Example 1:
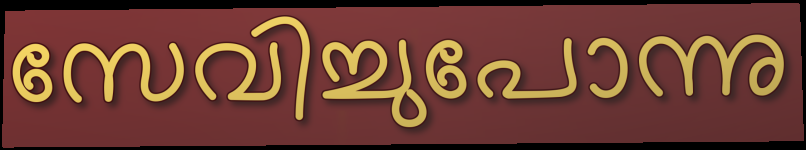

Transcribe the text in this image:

സേവിച്ചുപോന്നു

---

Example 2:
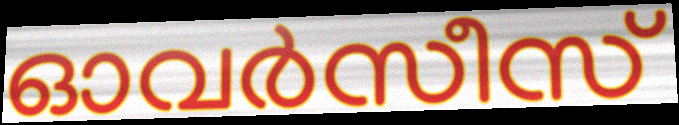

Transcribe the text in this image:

ഓവർസീസ്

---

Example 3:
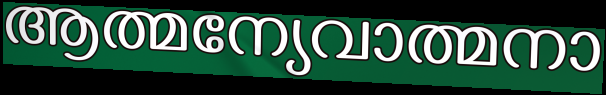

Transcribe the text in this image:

ആത്മന്യേവാത്മനാ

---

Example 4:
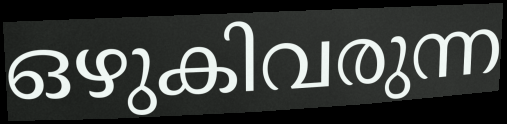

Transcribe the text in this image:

ഒഴുകിവരുന്ന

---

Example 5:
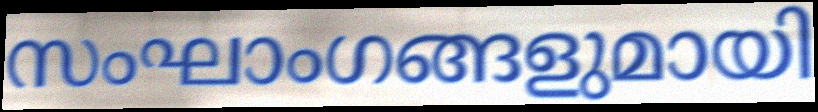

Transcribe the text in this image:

സംഘാംഗങ്ങളുമായി